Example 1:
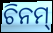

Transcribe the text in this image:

ଚିନମ୍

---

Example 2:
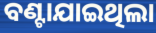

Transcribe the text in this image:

ବଣ୍ଟାଯାଇଥିଲା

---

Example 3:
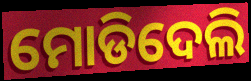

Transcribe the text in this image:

ମୋଡିଦେଲି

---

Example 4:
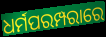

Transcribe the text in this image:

ଧର୍ମପରମ୍ପରାରେ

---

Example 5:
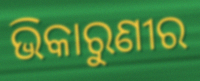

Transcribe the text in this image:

ଭିକାରୁଣୀର